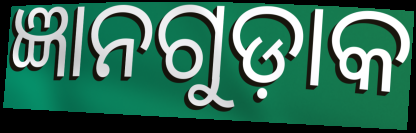
ଜ୍ଞାନଗୁଡ଼ାକ